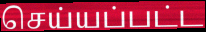
செய்யப்பட்ட